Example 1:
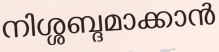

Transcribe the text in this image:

നിശ്ശബ്ദമാക്കാൻ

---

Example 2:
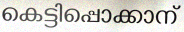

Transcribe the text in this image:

കെട്ടിപ്പൊക്കാന്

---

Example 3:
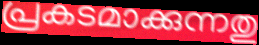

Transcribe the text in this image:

പ്രകടമാക്കുന്നതു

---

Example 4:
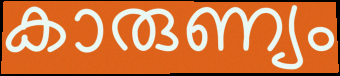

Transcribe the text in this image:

കാരുണ്യം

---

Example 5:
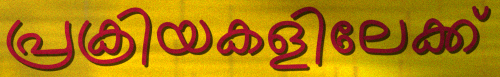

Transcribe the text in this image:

പ്രക്രിയകളിലേക്ക്